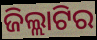
ଜିଲ୍ଲାଟିର